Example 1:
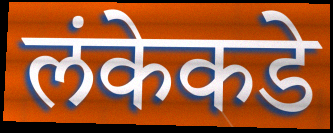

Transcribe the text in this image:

लंकेकडे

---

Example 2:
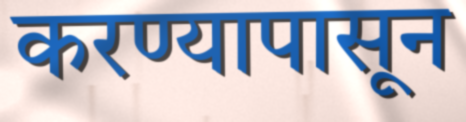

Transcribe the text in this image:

करण्यापासून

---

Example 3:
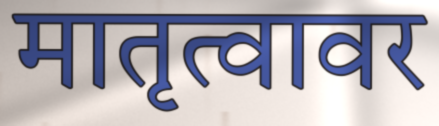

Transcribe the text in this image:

मातृत्वावर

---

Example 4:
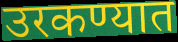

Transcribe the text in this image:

उरकण्यात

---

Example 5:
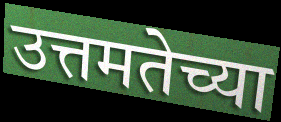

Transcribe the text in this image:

उत्तमतेच्या